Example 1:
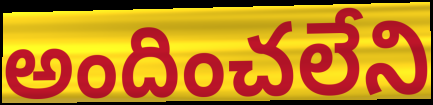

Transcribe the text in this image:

అందించలేని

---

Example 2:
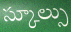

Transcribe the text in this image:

స్కూల్సు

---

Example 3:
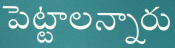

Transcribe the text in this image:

పెట్టాలన్నారు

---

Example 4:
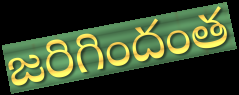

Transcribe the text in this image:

జరిగిందంత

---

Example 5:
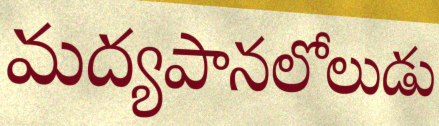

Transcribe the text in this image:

మద్యపానలోలుడు